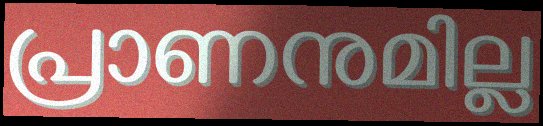
പ്രാണനുമില്ല